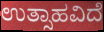
ಉತ್ಸಾಹವಿದೆ